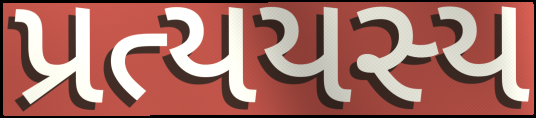
પ્રત્યયસ્ય